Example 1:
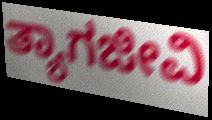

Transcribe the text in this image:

ತ್ಯಾಗಜೀವಿ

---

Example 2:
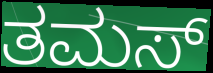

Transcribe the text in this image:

ತಮಸ್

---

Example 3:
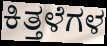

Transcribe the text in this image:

ಕಿತ್ತಳೆಗಳ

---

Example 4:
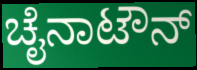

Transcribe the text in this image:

ಚೈನಾಟೌನ್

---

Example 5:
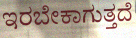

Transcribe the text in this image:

ಇರಬೇಕಾಗುತ್ತದೆ